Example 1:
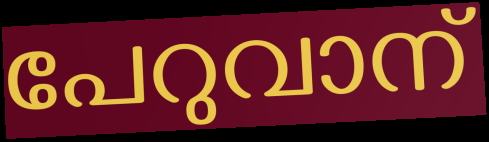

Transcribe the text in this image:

പേറുവാന്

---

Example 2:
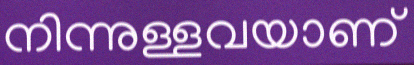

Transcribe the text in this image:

നിന്നുള്ളവയാണ്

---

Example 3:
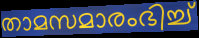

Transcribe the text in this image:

താമസമാരംഭിച്ച്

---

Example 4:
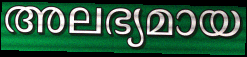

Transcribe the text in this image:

അലഭ്യമായ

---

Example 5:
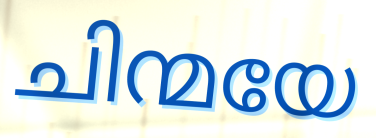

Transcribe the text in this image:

ചിന്മയേ